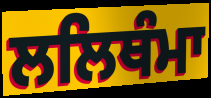
ਲਲਿਥੰਮਾ